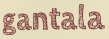
gantala